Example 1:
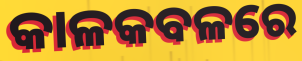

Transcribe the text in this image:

କାଳକବଳରେ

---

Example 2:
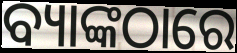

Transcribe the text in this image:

ବ୍ୟାଙ୍କଠାରେ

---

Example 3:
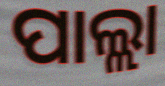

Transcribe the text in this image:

ପାଲ୍ଲା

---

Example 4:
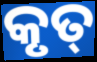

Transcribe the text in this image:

କୃତ୍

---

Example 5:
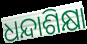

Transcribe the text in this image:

ଧନ୍ଦାଶିକ୍ଷା